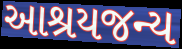
આશ્રયજન્ય